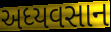
અધ્યવસાન